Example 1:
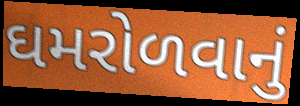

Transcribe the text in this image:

ઘમરોળવાનું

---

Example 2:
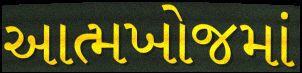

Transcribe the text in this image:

આત્મખોજમાં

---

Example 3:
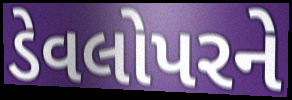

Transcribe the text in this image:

ડેવલોપરને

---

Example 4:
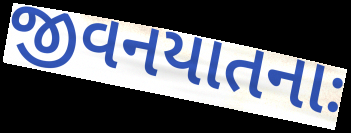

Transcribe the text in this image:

જીવનયાતનાઃ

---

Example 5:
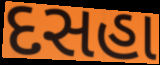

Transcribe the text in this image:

દસહા